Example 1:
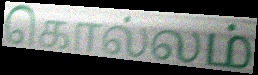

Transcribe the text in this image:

கொல்லம்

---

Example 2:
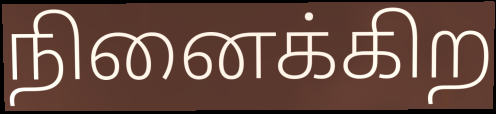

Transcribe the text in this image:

நினைக்கிற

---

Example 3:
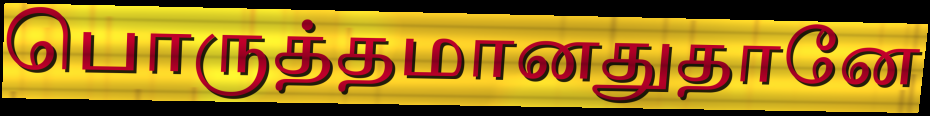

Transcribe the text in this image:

பொருத்தமானதுதானே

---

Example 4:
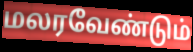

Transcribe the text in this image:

மலரவேண்டும்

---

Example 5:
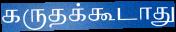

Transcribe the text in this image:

கருதக்கூடாது